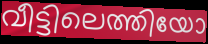
വീട്ടിലെത്തിയോ